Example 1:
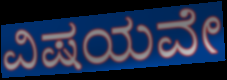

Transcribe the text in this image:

ವಿಷಯವೇ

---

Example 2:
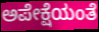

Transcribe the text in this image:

ಅಪೇಕ್ಷೆಯಂತೆ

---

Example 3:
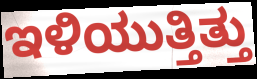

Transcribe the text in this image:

ಇಳಿಯುತ್ತಿತ್ತು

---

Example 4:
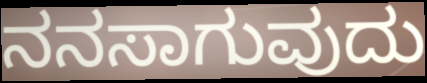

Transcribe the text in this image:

ನನಸಾಗುವುದು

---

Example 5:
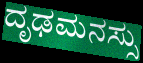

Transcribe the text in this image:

ದೃಢಮನಸ್ಸು